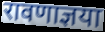
रावणाज्ञया